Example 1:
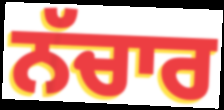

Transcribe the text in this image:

ਨੱਚਾਰ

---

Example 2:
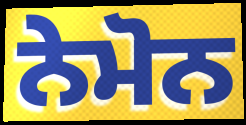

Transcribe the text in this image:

ਨੇਮੋਨ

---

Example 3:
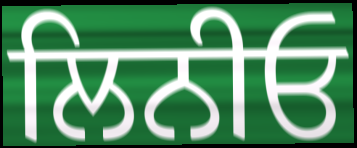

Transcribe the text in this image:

ਲਿਨੀਓ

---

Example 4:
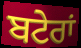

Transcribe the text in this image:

ਬਟੇਰਾਂ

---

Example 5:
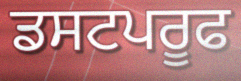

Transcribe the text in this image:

ਡਸਟਪਰੂਫ